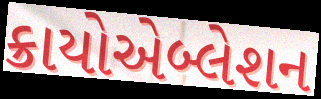
ક્રાયોએબ્લેશન